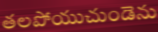
తలపోయుచుండెను